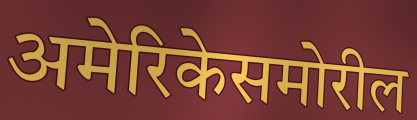
अमेरिकेसमोरील